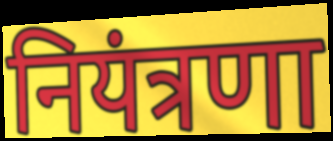
नियंत्रणा